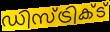
ഡിസ്ട്രിക്ട്